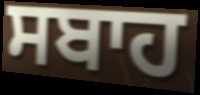
ਸਬਾਹ